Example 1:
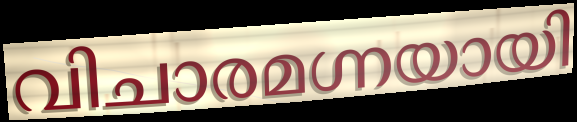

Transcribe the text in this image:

വിചാരമഗ്നയായി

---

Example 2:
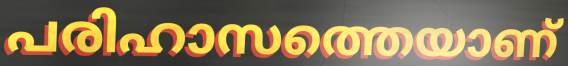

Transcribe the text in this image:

പരിഹാസത്തെയാണ്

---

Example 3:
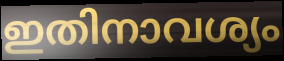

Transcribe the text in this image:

ഇതിനാവശ്യം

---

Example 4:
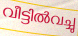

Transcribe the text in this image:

വീട്ടിൽവച്ചു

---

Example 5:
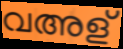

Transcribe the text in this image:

വഅള്